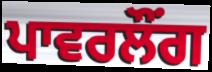
ਪਾਵਰਲੌਂਗ